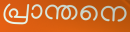
പ്രാന്തനെ